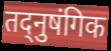
तद्नुषंगिक